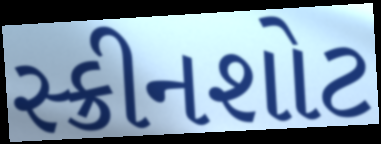
સ્ક્રીનશોટ